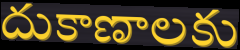
దుకాణాలకు